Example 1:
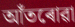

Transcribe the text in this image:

আঁতৰোৱা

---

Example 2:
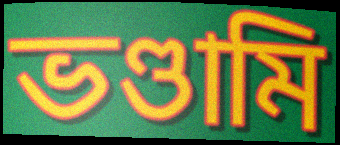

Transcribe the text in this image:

ভণ্ডামি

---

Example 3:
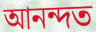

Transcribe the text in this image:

আনন্দত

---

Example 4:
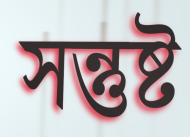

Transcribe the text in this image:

সন্তুষ্ট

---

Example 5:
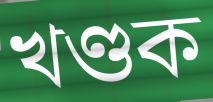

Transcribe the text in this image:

খণ্ডক